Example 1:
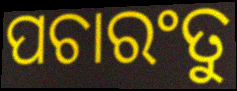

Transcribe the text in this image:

ପଚାରଂତୁ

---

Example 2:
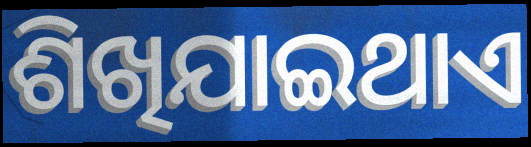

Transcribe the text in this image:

ଶିଖିଯାଇଥାଏ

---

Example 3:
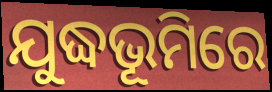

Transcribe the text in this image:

ଯୁଦ୍ଧଭୂମିରେ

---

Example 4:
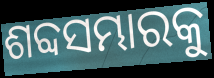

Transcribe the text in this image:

ଶବ୍ଦସମ୍ଭାରକୁ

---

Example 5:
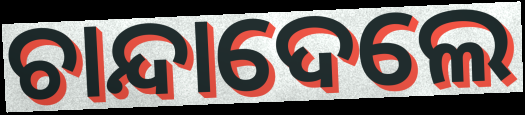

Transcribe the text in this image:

ଚାନ୍ଦାଦେଲେ